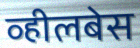
व्हीलबेस